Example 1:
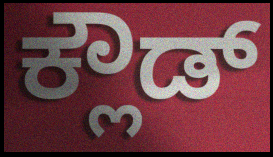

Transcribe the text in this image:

ಕ್ಲೌಡ್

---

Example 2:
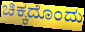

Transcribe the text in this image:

ಚಿಕ್ಕದೊಂದು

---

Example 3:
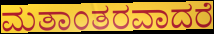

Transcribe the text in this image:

ಮತಾಂತರವಾದರೆ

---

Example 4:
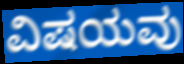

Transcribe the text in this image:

ವಿಷಯವು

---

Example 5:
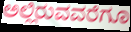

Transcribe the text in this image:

ಅಲ್ಲಿರುವವರೆಗೂ